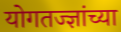
योगतज्ज्ञांच्या